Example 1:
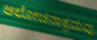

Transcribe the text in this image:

ಆಲೋಚನಾಕ್ರಮವು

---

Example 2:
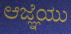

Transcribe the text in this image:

ಆಜ್ಞೆಯು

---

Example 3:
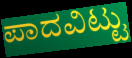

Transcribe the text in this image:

ಪಾದವಿಟ್ಟು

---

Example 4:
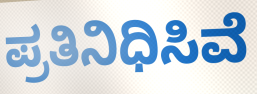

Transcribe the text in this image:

ಪ್ರತಿನಿಧಿಸಿವೆ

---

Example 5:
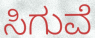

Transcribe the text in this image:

ಸಿಗುವೆ